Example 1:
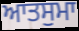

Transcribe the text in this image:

ਆਤਸੁਮਾ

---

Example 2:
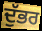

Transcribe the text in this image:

ਦੁੱਭਰ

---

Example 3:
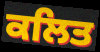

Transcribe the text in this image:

ਕਲਿਤ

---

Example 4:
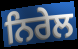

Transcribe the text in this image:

ਨਿਰੇਲ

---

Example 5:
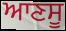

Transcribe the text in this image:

ਆਣਸੂ